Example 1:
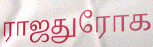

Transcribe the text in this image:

ராஜதுரோக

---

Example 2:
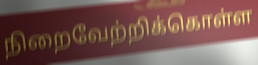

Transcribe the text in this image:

நிறைவேற்றிக்கொள்ள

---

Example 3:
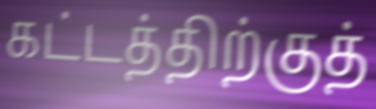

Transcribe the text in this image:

கட்டத்திற்குத்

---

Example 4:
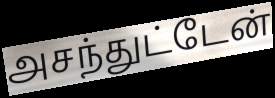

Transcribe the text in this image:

அசந்துட்டேன்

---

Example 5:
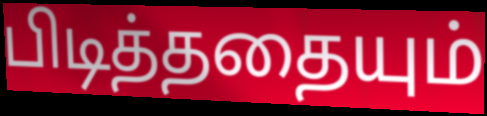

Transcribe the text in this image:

பிடித்ததையும்